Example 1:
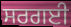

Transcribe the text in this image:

ਸਰਗਈ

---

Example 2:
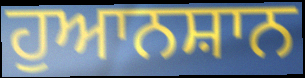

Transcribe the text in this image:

ਹੁਆਨਸ਼ਾਨ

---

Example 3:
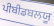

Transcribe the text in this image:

ਪੀਬੀਡਬਲਯੂ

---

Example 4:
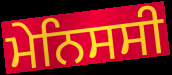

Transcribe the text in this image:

ਮੇਨਿਸਸੀ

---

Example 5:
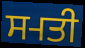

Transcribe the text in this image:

ਸ੍ਮਤੀ